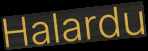
Halardu